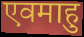
एवमाहु